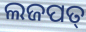
ଲଜପତ୍